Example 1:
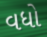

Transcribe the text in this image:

વધો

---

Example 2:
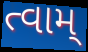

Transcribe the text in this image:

ત્વામ્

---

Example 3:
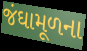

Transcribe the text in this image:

જંઘામૂળના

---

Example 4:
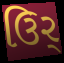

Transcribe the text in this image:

ઉિર્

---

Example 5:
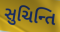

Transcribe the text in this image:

સુચિન્તિ